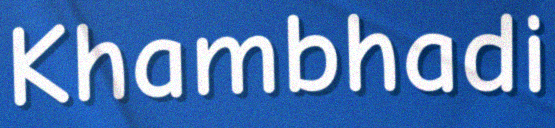
Khambhadi